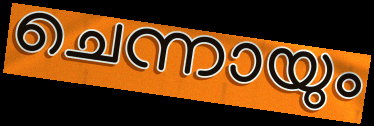
ചെന്നായും